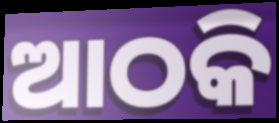
ଆଠକି